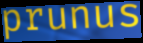
prunus